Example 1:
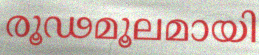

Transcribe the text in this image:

രൂഢമൂലമായി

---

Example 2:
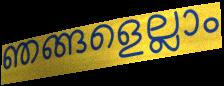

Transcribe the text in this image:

ഞങ്ങളെല്ലാം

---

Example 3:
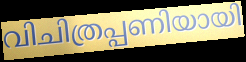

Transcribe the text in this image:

വിചിത്രപ്പണിയായി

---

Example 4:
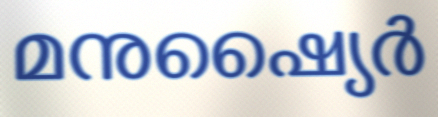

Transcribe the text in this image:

മനുഷ്യൈർ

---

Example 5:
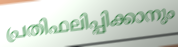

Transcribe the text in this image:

പ്രതിഫലിപ്പിക്കാനും